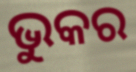
ଭୁକର